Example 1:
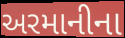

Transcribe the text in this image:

અરમાનીના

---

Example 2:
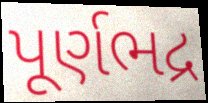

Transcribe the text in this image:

પૂર્ણભદ્ર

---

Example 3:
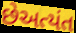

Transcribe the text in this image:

છેઅત્યંત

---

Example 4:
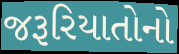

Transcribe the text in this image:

જરૂરિયાતોનો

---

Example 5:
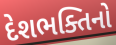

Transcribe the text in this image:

દેશભક્તિનો